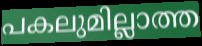
പകലുമില്ലാത്ത